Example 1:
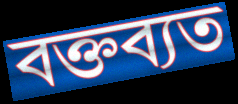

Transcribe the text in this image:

বক্তব্যত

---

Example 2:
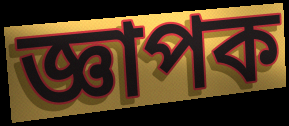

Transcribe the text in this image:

জ্ঞাপক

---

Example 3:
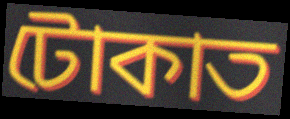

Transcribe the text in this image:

টোকাত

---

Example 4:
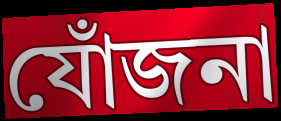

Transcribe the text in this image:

যোঁজনা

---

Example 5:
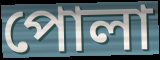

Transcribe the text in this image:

পোলা